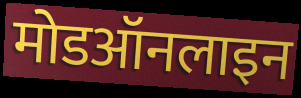
मोडऑनलाइन